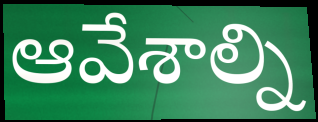
ఆవేశాల్ని